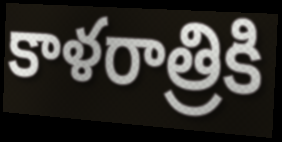
కాళరాత్రికి